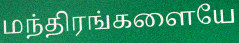
மந்திரங்களையே